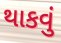
થાકવું